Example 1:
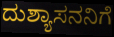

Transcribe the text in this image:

ದುಶ್ಯಾಸನನಿಗೆ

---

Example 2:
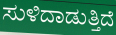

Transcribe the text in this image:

ಸುಳಿದಾಡುತ್ತಿದೆ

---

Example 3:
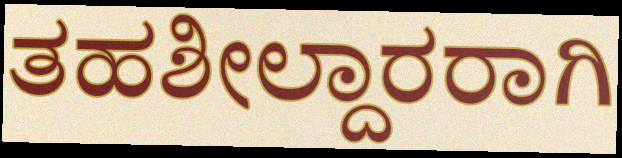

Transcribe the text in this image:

ತಹಶೀಲ್ದಾರರಾಗಿ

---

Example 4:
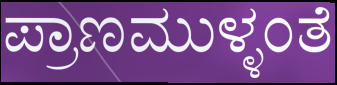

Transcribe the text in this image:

ಪ್ರಾಣಮುಳ್ಳಂತೆ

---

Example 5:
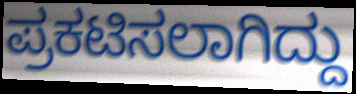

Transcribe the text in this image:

ಪ್ರಕಟಿಸಲಾಗಿದ್ದು